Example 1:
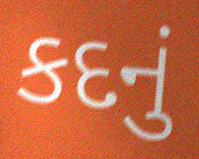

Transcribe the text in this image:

કદનું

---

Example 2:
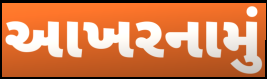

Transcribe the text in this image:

આખરનામું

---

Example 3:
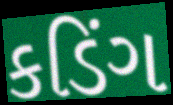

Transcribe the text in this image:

કડિંગ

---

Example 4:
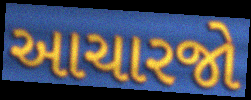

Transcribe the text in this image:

આચારજો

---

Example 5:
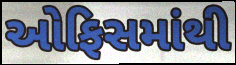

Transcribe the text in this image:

ઓફિસમાંથી